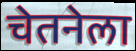
चेतनेला